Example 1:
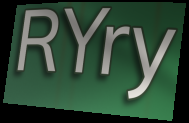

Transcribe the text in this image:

RYry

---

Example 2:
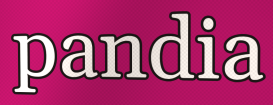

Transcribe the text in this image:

pandia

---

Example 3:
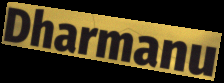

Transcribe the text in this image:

Dharmanu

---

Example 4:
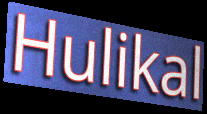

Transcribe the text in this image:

Hulikal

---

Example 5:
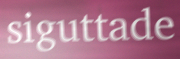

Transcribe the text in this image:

siguttade